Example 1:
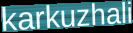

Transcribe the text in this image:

karkuzhali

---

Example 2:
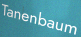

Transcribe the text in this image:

Tanenbaum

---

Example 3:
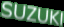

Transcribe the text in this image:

SUZUKI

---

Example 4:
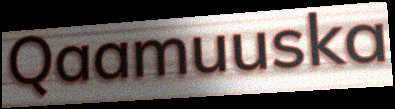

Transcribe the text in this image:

Qaamuuska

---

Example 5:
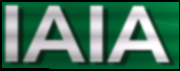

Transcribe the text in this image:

IAIA